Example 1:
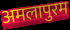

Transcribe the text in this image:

अमलापुरम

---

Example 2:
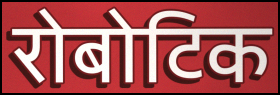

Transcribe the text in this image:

रोबोटिक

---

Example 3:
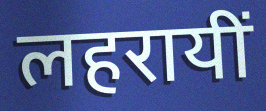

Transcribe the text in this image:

लहरायीं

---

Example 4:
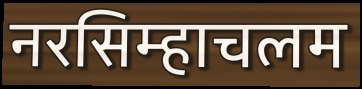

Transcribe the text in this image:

नरसिम्हाचलम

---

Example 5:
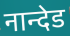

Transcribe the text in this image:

नान्देड